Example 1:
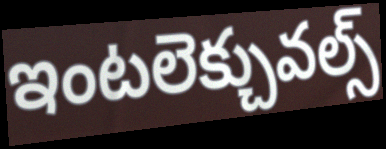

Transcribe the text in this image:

ఇంటలెక్చువల్స్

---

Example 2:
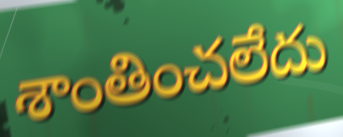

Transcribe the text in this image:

శాంతించలేదు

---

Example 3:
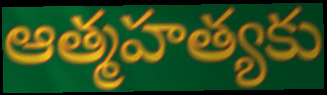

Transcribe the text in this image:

ఆత్మహత్యకు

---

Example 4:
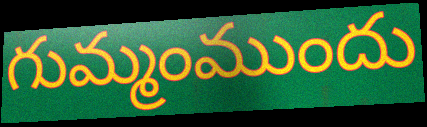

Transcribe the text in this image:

గుమ్మంముందు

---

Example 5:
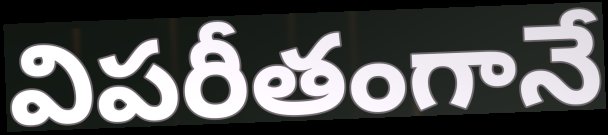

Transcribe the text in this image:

విపరీతంగానే